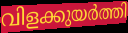
വിളക്കുയർത്തി